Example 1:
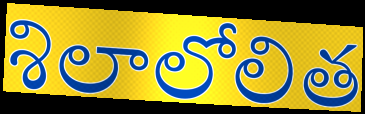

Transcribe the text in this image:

శిలాలోలిత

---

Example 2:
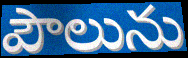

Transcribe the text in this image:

పౌలును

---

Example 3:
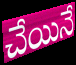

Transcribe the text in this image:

చేయినే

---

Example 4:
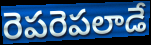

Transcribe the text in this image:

రెపరెపలాడే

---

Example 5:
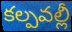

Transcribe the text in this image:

కల్పవల్లీ